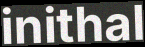
inithal